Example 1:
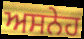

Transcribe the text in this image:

ਅਸਨੇਹ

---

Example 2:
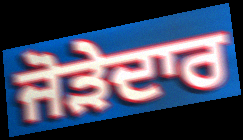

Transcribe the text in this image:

ਜੋੜੇਦਾਰ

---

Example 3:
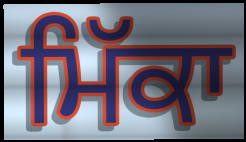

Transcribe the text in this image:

ਮਿੱਕਾ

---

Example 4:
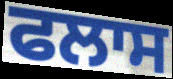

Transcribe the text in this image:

ਫਲਾਸ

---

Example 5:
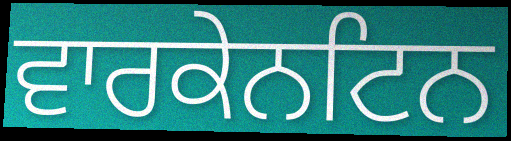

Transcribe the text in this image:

ਵਾਰਕੇਨਟਿਨ